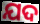
ଯଦ